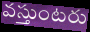
వస్తుంటరు